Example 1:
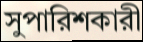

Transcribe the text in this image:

সুপারিশকারী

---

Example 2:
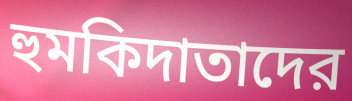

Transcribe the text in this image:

হুমকিদাতাদের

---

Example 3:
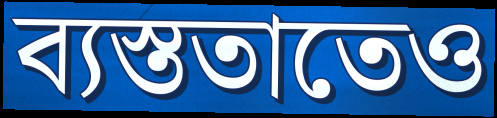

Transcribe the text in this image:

ব্যস্ততাতেও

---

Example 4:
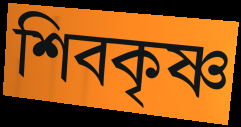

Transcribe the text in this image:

শিবকৃষ্ণ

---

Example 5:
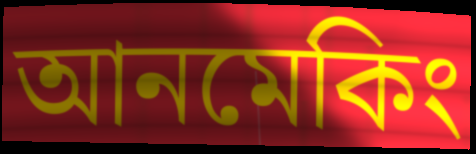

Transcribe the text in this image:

আনমেকিং